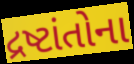
દ્રષ્ટાંતોના